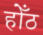
होँठ